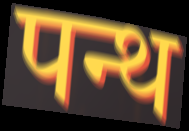
पन्थ